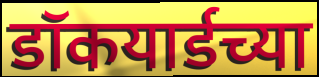
डॉकयार्डच्या